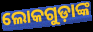
ଲୋକଗୁଡ଼ାଙ୍କ